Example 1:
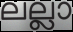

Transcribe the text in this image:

ലല്ലാ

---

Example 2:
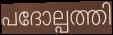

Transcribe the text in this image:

പദോല്പത്തി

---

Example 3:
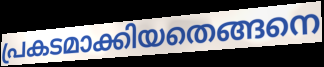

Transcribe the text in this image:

പ്രകടമാക്കിയതെങ്ങനെ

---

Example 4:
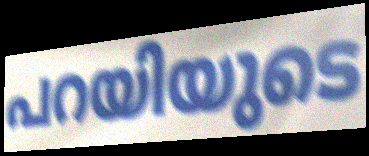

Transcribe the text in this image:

പറയിയുടെ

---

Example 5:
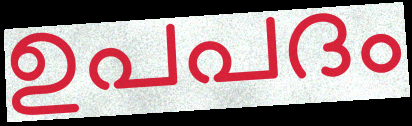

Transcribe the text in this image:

ഉപപദം